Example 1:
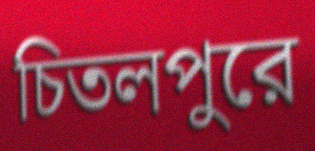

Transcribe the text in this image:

চিতলপুরে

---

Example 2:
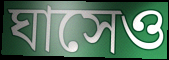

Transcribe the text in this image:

ঘাসেও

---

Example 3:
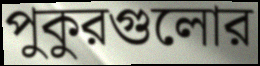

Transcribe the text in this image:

পুকুরগুলোর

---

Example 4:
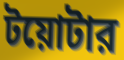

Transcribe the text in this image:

টয়োটার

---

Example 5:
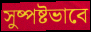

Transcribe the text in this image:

সুষ্পষ্টভাবে